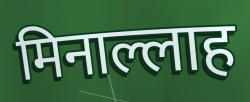
मिनाल्लाह